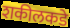
शकीलकडे